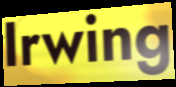
Irwing